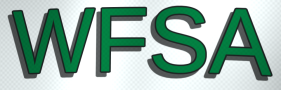
WFSA